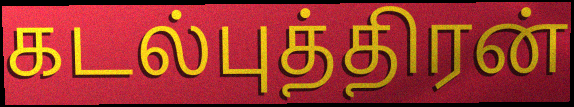
கடல்புத்திரன்